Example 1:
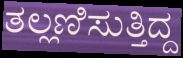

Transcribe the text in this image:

ತಲ್ಲಣಿಸುತ್ತಿದ್ದ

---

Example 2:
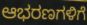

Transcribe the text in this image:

ಆಭರಣಗಳಿಗೆ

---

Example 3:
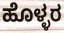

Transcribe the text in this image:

ಹೊಳ್ಳರ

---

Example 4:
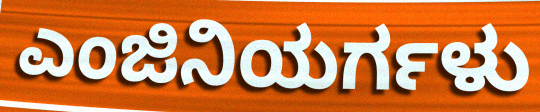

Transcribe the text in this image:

ಎಂಜಿನಿಯರ್ಗಳು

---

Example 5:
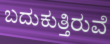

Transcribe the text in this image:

ಬದುಕುತ್ತಿರುವೆ